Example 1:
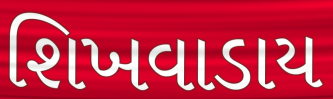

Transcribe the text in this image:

શિખવાડાય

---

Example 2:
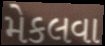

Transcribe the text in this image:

મેકલવા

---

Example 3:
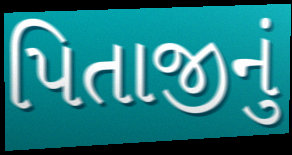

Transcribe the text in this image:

પિતાજીનું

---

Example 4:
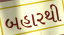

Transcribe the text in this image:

બહારથી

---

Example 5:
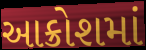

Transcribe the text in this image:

આક્રોશમાં